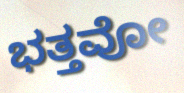
ಭತ್ತವೋ